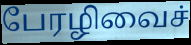
பேரழிவைச்